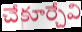
చేకూర్చేవి